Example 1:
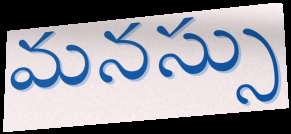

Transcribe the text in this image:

మనస్సు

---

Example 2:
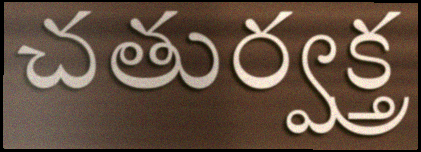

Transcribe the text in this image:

చతుర్వక్త్ర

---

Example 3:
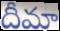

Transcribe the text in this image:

దీమా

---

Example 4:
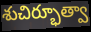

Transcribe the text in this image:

శుచిర్భూత్వా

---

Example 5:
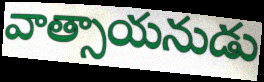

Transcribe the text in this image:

వాత్సాయనుడు